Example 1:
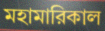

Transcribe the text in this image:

মহামারিকাল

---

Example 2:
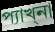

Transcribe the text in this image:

প্যাখ্না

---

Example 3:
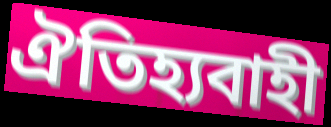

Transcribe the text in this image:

ঐতিহ্যবাহী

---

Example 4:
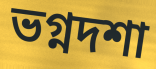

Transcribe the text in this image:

ভগ্নদশা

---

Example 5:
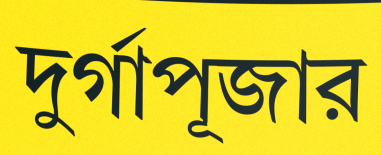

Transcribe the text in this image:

দুর্গাপূজার